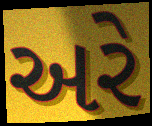
અરે